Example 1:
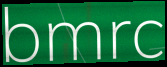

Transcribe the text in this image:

bmrc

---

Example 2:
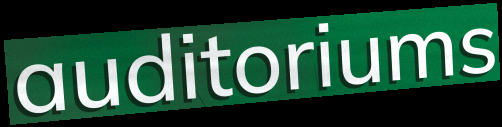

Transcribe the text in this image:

auditoriums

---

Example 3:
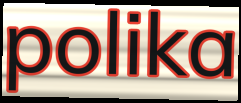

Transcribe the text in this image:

polika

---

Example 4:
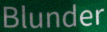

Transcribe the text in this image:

Blunder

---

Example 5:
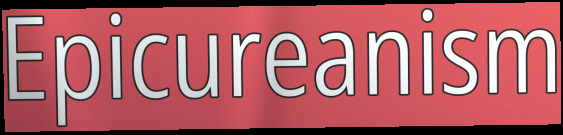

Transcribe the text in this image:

Epicureanism